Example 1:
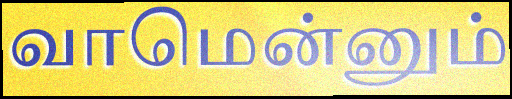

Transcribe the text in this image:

வாமென்னும்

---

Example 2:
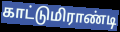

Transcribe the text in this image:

காட்டுமிராண்டி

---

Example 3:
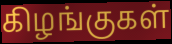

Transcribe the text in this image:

கிழங்குகள்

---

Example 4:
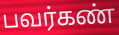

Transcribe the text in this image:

பவர்கண்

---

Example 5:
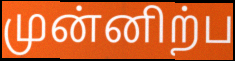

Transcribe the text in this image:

முன்னிற்ப